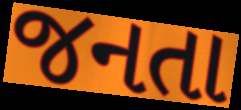
જનતા